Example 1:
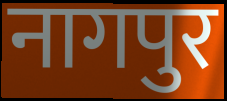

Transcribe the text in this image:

नागपुर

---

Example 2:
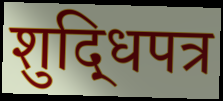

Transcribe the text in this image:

शुद्धिपत्र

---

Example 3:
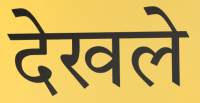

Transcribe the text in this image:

देखले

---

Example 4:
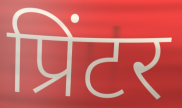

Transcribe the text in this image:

प्रिंटर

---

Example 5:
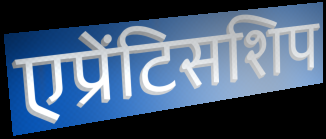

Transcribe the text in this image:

एप्रेंटिसशिप